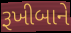
રૂખીબાને